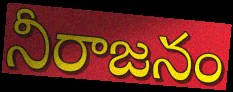
నీరాజనం